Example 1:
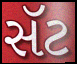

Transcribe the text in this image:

સૅટ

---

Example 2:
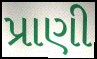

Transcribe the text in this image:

પ્રાણી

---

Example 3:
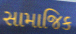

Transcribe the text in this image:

સામાજિક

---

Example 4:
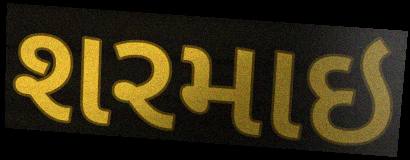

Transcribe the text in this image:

શરમાઇ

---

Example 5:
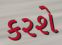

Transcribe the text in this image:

કરશે